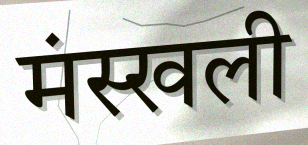
मंस्खली